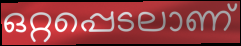
ഒറ്റപ്പെടലാണ്